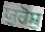
ਯੁਹੋਸ਼ੁ